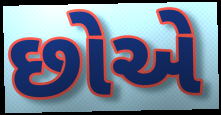
છોએ